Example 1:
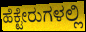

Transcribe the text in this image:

ಹೆಕ್ಟೇರುಗಳಲ್ಲಿ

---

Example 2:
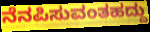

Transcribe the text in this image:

ನೆನಪಿಸುವಂತಹದ್ದು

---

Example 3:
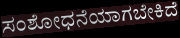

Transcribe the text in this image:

ಸಂಶೋಧನೆಯಾಗಬೇಕಿದೆ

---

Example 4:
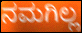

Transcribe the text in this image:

ನಮಗಿಲ್ಲ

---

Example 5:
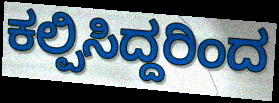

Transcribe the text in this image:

ಕಲ್ಪಿಸಿದ್ದರಿಂದ